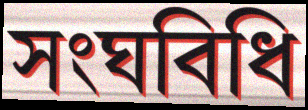
সংঘবিধি